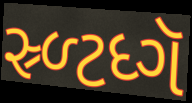
સ્ર્ળ્ટધ્ગૅ